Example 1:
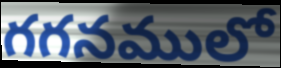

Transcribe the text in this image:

గగనములో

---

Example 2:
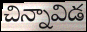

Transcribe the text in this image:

చిన్నావిడ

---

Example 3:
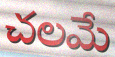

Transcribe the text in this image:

చలమే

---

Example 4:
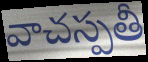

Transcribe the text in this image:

వాచస్పతీ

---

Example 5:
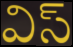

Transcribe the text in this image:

విస్